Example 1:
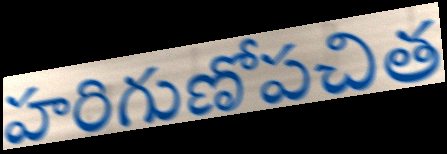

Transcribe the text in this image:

హరిగుణోపచిత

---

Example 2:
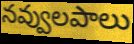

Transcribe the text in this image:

నవ్వులపాలు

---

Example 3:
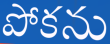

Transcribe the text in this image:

పోకను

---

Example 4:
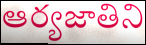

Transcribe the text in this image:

ఆర్యజాతిని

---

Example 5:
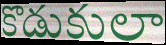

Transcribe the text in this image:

కొడుకులా